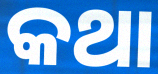
କଥା